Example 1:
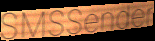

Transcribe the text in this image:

SMSSender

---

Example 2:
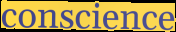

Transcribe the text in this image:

conscience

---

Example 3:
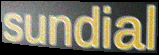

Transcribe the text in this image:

sundial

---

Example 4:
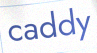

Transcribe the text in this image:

caddy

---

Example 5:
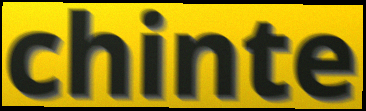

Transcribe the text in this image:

chinte